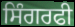
ਸਿੰਗਰਫੀ